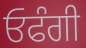
ਓਫੰਗੀ